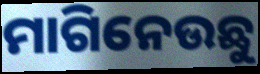
ମାଗିନେଉଛୁ